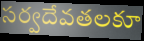
సర్వదేవతలకూ